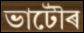
ভাটৌৰ